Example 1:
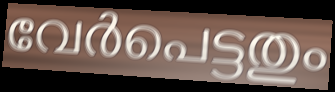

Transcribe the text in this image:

വേർപെട്ടതും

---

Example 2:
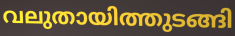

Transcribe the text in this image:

വലുതായിത്തുടങ്ങി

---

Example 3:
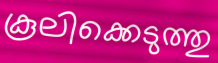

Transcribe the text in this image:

കൂലിക്കെടുത്തു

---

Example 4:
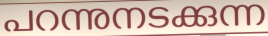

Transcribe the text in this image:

പറന്നുനടക്കുന്ന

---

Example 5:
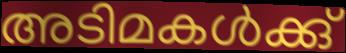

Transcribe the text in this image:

അടിമകൾക്കു്